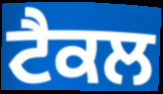
ਟੈਕਲ